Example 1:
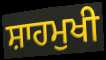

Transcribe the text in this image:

ਸ਼ਾਹਮੁਖੀ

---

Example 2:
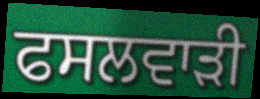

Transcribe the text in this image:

ਫਸਲਵਾੜੀ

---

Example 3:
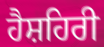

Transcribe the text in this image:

ਹੈਸ਼ਹਿਰੀ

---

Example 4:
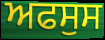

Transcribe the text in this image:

ਅਫਸੁਸ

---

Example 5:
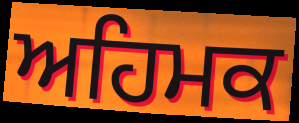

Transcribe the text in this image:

ਅਹਿਮਕ